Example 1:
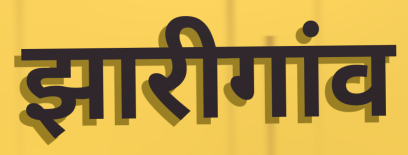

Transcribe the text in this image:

झारीगांव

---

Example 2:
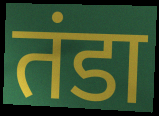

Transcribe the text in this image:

तंडा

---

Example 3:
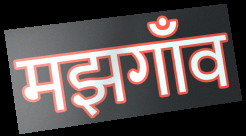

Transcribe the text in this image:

मझगाँव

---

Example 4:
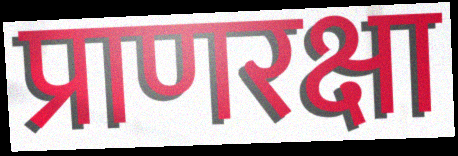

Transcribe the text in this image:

प्राणरक्षा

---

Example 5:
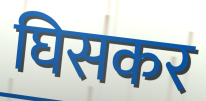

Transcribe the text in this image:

घिसकर